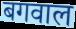
बगवाल